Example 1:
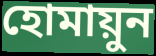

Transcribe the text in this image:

হোমায়ুন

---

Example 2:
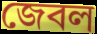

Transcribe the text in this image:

জেবল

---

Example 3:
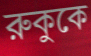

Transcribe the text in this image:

রুকুকে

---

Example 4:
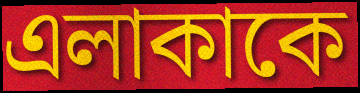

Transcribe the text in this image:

এলাকাকে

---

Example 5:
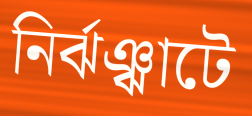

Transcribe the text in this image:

নির্ঝঞ্ঝাটে